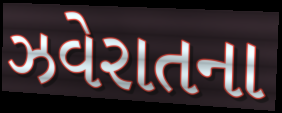
ઝવેરાતના